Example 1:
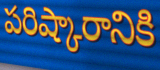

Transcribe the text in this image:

పరిష్కారానికి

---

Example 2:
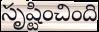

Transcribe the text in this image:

సృష్టించింది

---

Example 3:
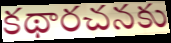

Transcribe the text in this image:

కథారచనకు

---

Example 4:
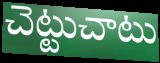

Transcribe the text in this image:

చెట్టుచాటు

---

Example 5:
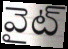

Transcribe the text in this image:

వైట్